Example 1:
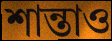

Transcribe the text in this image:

শান্তাও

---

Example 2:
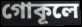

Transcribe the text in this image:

গোকূলে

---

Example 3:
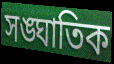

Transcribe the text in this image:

সঙ্ঘাতিক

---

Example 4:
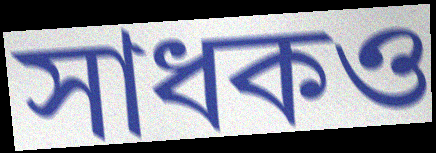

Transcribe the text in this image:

সাধকও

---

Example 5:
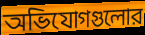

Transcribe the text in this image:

অভিযোগগুলোর